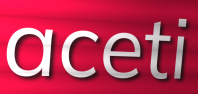
aceti